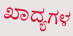
ಖಾದ್ಯಗಳ